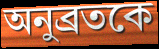
অনুব্রতকে